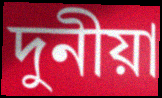
দুনীয়া